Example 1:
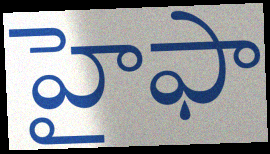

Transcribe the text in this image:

హైఫా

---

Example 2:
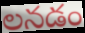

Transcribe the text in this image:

లనడం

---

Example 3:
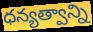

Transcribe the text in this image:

ధన్యత్వాన్ని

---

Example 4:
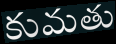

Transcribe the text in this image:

కుమతు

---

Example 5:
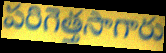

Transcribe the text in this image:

పరిగెత్తసాగారు